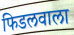
फिडलवाला